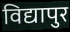
विद्यापुर